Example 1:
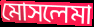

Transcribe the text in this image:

মোসলেমা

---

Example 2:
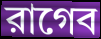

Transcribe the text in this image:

রাগেব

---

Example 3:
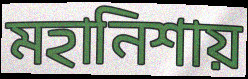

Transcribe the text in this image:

মহানিশায়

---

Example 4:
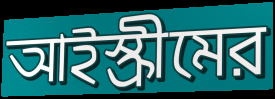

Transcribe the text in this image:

আইস্ক্রীমের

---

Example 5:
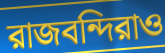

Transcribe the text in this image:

রাজবন্দিরাও